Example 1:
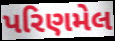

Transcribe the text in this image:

પરિણમેલ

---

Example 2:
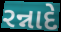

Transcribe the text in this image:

રન્નાદે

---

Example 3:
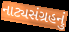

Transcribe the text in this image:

નાટ્યસંગ્રહનું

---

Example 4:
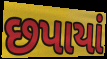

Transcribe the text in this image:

છપાયાં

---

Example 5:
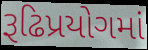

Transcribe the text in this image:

રૂઢિપ્રયોગમાં